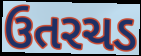
ઉતરચડ